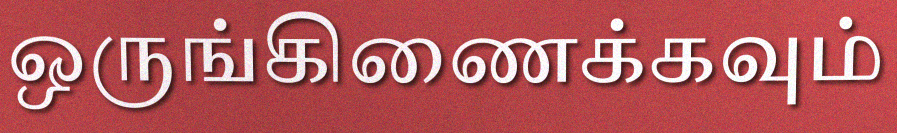
ஒருங்கிணைக்கவும்